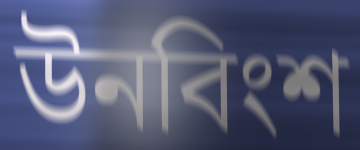
উনবিংশ